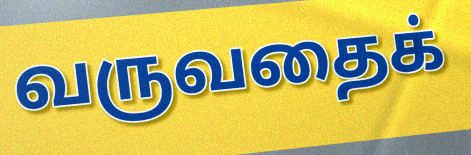
வருவதைக்